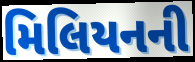
મિલિયનની